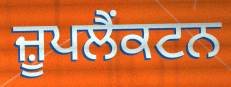
ਜ਼ੂਪਲੈਂਕਟਨ